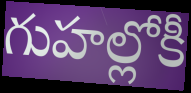
గుహల్లోకీ